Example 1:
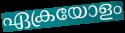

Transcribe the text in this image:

ഏക്രയോളം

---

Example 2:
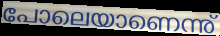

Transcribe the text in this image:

പോലെയാണെന്നു്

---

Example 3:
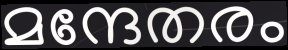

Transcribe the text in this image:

മന്ദേതരം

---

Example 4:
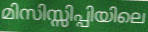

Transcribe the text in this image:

മിസിസ്സിപ്പിയിലെ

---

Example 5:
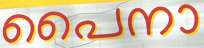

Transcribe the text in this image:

പൈനാ